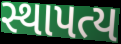
સ્થાપત્ય